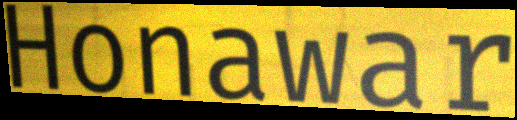
Honawar